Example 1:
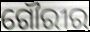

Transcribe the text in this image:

ଗୌରୀର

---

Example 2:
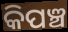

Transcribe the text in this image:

କିପଞ୍ଚ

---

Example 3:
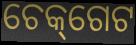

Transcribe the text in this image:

ଚେକ୍‌ଗେଟ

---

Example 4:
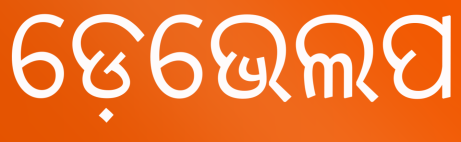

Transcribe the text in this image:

ଡ଼େଭେଲପ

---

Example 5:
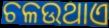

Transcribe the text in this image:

ଚଳଉଥାଏ